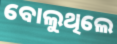
ବୋଲୁଥିଲେ